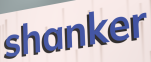
shanker